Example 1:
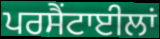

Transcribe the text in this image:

ਪਰਸੈਂਟਾਈਲਾਂ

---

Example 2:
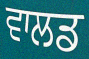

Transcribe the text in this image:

ਵਾਲਡ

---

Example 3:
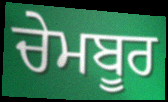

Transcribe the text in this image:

ਚੇਮਬੂਰ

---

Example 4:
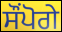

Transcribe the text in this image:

ਸੌਂਪੋਗੇ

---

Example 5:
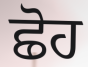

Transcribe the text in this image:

ਛੋਹ